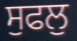
ਸੁਫਲੁ